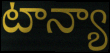
టాన్యా